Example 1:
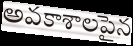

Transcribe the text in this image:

అవకాశాలపైన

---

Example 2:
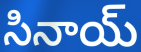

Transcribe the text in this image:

సినాయ్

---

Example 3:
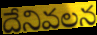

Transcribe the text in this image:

దేనివలన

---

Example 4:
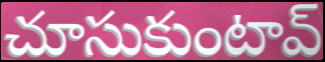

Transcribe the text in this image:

చూసుకుంటావ్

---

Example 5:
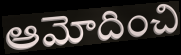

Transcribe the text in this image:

ఆమోదించి